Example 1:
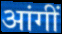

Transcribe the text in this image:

आंगीं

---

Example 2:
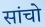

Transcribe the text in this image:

सांचो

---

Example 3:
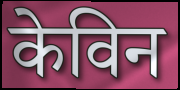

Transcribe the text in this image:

केविन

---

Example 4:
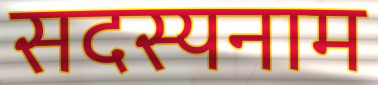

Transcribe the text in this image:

सदस्यनाम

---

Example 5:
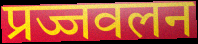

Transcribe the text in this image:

प्रज्‍जवलन